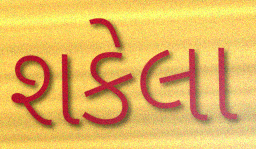
શકેલા